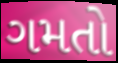
ગમતો